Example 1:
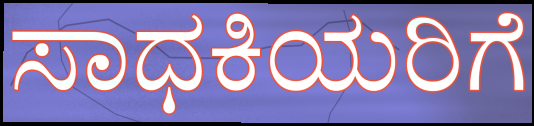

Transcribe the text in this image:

ಸಾಧಕಿಯರಿಗೆ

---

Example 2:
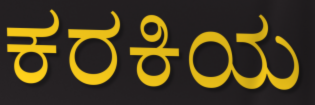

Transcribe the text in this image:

ಕರಕಿಯ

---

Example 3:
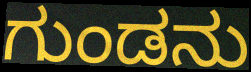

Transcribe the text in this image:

ಗುಂಡನು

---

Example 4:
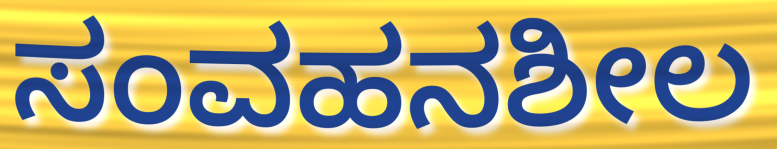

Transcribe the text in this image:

ಸಂವಹನಶೀಲ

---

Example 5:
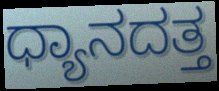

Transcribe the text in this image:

ಧ್ಯಾನದತ್ತ